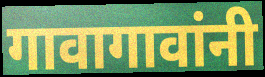
गावागावांनी